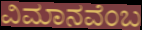
ವಿಮಾನವೆಂಬ